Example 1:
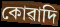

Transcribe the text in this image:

কোৱাদি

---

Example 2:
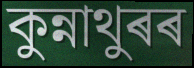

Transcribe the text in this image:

কুন্নাথুৰৰ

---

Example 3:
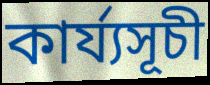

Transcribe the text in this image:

কাৰ্য্যসূচী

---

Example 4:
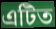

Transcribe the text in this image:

এটিত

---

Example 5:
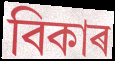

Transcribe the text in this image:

বিকাৰ